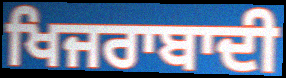
ਖਿਜਰਾਬਾਦੀ